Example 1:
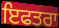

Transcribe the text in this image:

ਇਫਤਰਾ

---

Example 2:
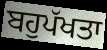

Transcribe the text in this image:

ਬਹੁਪੱਖਤਾ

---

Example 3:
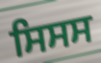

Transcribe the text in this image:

ਸਿਸਸ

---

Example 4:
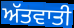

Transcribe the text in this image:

ਅੱਤਵਾਤੀ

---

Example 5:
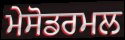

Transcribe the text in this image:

ਮੇਸੋਡਰਮਲ